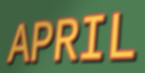
APRIL